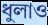
ধুলাও